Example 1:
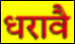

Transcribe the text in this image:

धरावै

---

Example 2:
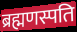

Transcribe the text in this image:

ब्रह्मणस्पति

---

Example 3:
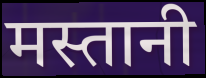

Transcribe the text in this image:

मस्‍तानी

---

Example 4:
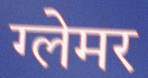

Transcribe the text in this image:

ग्लेमर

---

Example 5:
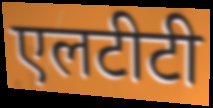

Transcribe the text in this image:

एलटीटी